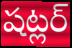
షట్లర్